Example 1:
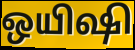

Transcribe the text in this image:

ஒயிஷி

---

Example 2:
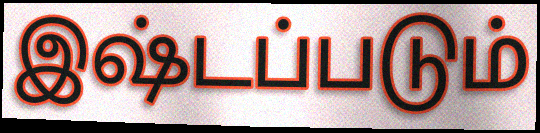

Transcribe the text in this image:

இஷ்டப்படும்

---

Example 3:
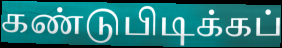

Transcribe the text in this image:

கண்டுபிடிக்கப்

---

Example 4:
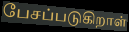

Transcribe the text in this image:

பேசப்படுகிறாள்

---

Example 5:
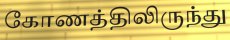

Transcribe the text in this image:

கோணத்திலிருந்து